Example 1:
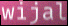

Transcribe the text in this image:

wijal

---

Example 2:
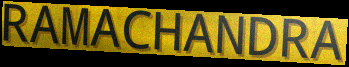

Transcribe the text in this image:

RAMACHANDRA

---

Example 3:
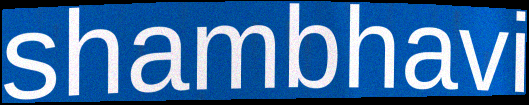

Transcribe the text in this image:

shambhavi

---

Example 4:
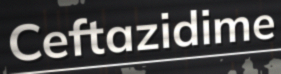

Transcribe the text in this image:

Ceftazidime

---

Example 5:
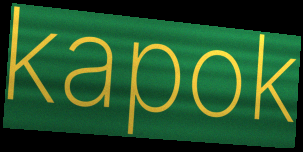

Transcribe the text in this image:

kapok